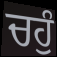
ਚਹੁੰ